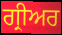
ਗ੍ਰੀਅਰ